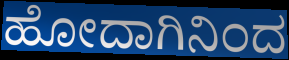
ಹೋದಾಗಿನಿಂದ